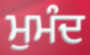
ਮੁਮੰਦ